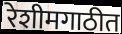
रेशीमगाठीत